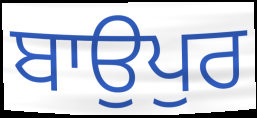
ਬਾਉਪੁਰ